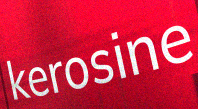
kerosine